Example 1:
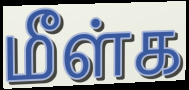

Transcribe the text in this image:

மீள்க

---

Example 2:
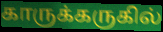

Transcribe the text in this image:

காருக்கருகில்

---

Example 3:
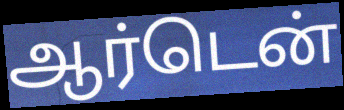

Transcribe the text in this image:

ஆர்டென்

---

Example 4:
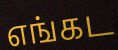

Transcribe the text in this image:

எங்கட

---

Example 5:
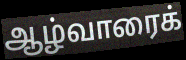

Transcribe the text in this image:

ஆழ்வாரைக்